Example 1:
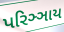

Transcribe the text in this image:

પરિઞ્ઞાય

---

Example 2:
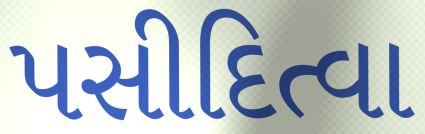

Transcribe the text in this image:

પસીદિત્વા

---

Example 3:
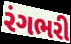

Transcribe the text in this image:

રંગભરી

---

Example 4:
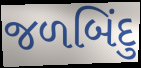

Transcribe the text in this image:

જળબિંદુ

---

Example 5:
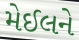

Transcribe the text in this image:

મેઈલને